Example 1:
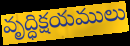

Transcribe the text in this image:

వృద్ధిక్షయములు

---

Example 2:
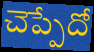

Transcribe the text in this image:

చెప్పేదో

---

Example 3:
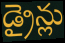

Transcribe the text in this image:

డ్రైన్లు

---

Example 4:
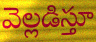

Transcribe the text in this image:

వెల్లడిస్తూ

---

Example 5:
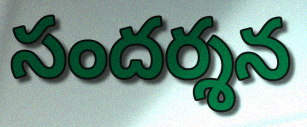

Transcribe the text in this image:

సందర్శన